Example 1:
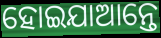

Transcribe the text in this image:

ହୋଇଯାଆନ୍ତେ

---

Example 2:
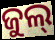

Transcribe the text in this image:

ଜୁଲ୍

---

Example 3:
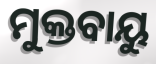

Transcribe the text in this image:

ମୁକ୍ତବାୟୁ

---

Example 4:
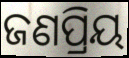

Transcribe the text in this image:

ଜଣପ୍ରିୟ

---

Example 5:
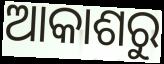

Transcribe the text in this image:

ଆକାଶରୁ